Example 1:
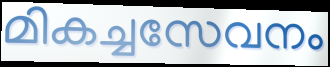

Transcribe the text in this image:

മികച്ചസേവനം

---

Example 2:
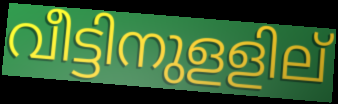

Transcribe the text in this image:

വീട്ടിനുളളില്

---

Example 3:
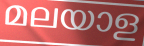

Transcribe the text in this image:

മലയാള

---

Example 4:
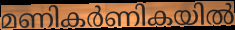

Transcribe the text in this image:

മണികർണികയിൽ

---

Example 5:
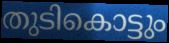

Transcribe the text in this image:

തുടികൊട്ടും